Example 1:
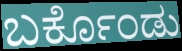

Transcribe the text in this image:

ಬರ್ಕೊಂಡು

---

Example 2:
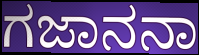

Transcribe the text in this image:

ಗಜಾನನಾ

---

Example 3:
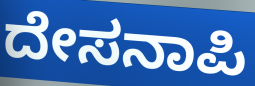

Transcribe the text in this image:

ದೇಸನಾಪಿ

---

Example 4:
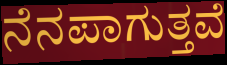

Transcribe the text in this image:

ನೆನಪಾಗುತ್ತವೆ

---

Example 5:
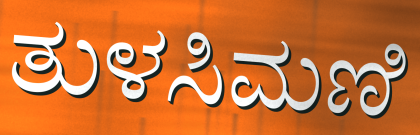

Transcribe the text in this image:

ತುಳಸಿಮಣಿ